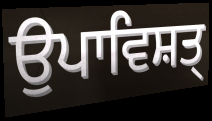
ਉਪਾਵਿਸ਼ਤ੍